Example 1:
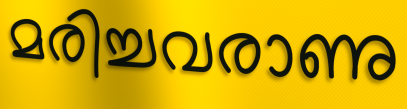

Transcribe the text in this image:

മരിച്ചവരാണു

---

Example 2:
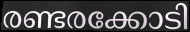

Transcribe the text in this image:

രണ്ടരക്കോടി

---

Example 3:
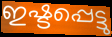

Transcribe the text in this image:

ഇഷ്ടപ്പെട്ടു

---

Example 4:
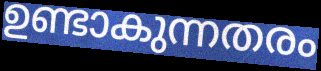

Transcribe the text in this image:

ഉണ്ടാകുന്നതരം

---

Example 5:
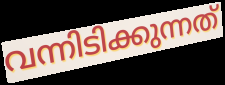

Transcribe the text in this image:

വന്നിടിക്കുന്നത്